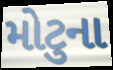
મોટુના